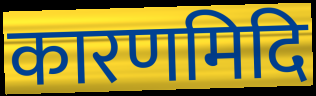
कारणमिदि